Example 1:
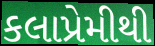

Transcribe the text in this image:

કલાપ્રેમીથી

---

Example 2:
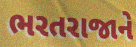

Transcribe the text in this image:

ભરતરાજાને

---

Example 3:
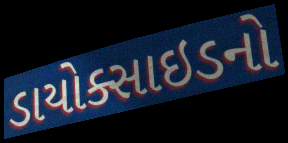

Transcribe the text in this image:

ડાયોક્સાઇડનો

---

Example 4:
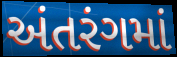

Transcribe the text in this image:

અંતરંગમાં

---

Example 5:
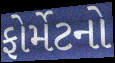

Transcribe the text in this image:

ફોર્મેટનો